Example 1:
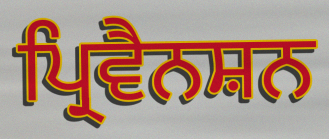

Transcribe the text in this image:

ਪ੍ਰਿਵੈਨਸ਼ਨ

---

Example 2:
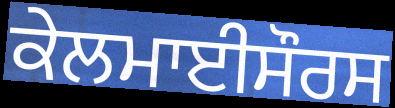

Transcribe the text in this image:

ਕੇਲਮਾਈਸੌਰਸ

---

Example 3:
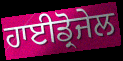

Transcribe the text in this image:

ਹਾਈਡ੍ਰੋਜੇਲ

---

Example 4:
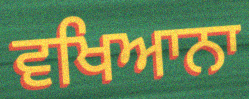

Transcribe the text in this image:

ਵਖਿਆਨਾ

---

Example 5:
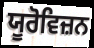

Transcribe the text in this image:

ਯੂਰੋਵਿਜ਼ਨ